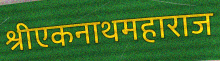
श्रीएकनाथमहाराज